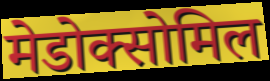
मेडोक्सोमिल